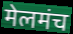
मेलमंच